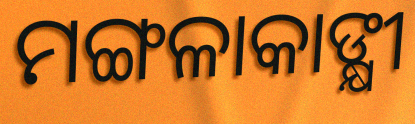
ମଙ୍ଗଳାକାଙ୍କ୍ଷୀ